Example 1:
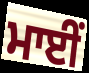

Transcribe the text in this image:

ਮਾਈਂ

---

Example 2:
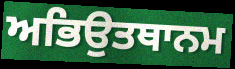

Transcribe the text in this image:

ਅਭਿਉਤਥਾਨਮ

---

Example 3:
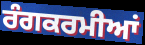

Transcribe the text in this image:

ਰੰਗਕਰਮੀਆਂ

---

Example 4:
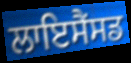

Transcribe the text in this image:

ਲਾਇਸੈਂਸਡ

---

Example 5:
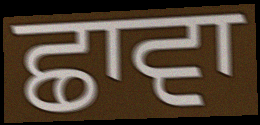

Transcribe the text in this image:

ਛਾਵਾ